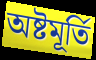
অষ্টমূৰ্তি